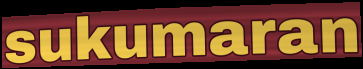
sukumaran